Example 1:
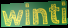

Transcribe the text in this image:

winti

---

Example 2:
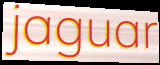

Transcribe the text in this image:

jaguar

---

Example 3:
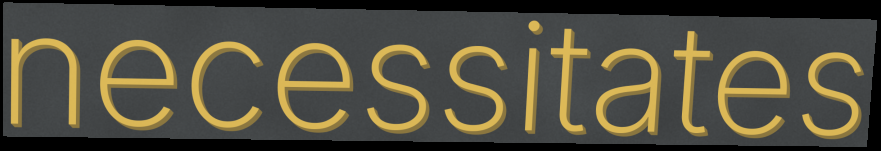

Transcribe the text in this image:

necessitates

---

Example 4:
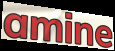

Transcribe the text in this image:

amine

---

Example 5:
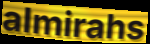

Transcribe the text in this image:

almirahs